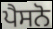
ਪੈਸਨੋ